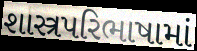
શાસ્ત્રપરિભાષામાં